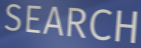
SEARCH